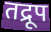
तद्रूप